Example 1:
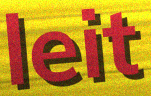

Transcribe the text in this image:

leit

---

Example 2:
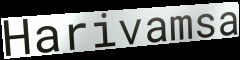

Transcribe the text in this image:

Harivamsa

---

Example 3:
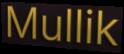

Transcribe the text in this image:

Mullik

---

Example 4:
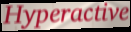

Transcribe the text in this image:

Hyperactive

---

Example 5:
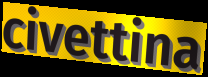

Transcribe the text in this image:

civettina